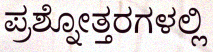
ಪ್ರಶ್ನೋತ್ತರಗಳಲ್ಲಿ